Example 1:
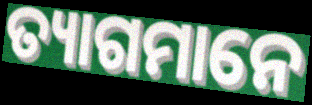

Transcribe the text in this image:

ତ୍ୟାଗମାନେ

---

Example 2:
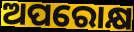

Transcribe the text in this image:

ଅପରୋକ୍ଷ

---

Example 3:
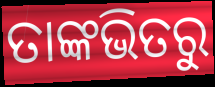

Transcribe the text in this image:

ତାଙ୍କଭିତରୁ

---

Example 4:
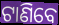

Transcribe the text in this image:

ଟାଣିବେ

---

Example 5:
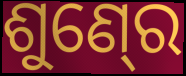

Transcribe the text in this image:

ଶୁଣ୍‍ରେ